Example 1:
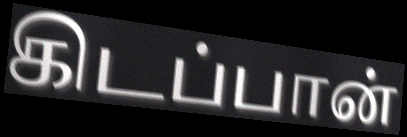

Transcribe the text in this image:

கிடப்பான்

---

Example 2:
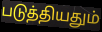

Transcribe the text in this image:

படுத்தியதும்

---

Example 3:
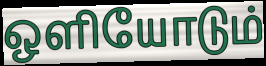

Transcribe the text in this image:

ஒளியோடும்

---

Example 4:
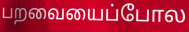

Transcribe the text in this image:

பறவையைப்போல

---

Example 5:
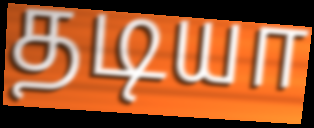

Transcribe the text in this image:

தடியா